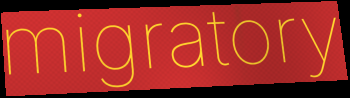
migratory